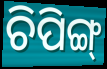
ଚିପିଙ୍ଗ୍